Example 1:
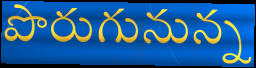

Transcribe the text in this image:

పొరుగునున్న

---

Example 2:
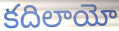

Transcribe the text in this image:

కదిలాయో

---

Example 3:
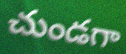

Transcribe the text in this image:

చుండగా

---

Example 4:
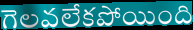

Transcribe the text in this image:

గెలవలేకపోయింది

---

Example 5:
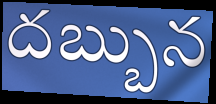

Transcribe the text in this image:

దబ్బున